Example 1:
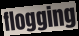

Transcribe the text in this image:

flogging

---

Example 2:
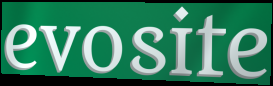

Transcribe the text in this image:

evosite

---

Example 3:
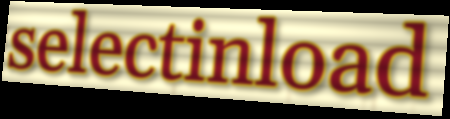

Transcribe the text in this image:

selectinload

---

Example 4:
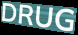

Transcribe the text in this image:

DRUG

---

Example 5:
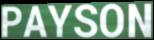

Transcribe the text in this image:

PAYSON